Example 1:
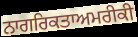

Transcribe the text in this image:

ਨਾਗਰਿਕਤਾਅਮਰੀਕੀ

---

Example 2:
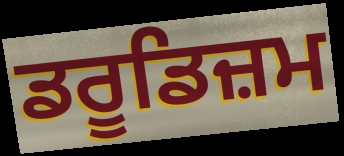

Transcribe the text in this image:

ਡਰੂਡਿਜ਼ਮ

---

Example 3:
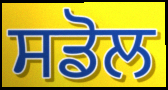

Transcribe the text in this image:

ਸਡੋਲ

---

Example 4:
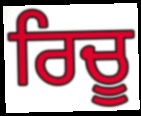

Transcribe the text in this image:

ਰਿਚੂ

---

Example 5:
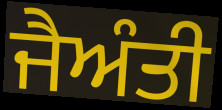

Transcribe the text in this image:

ਜੈਅੰਤੀ